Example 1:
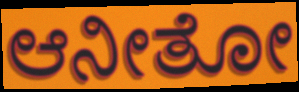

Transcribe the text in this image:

ಆನೀತೋ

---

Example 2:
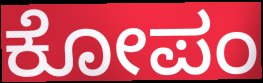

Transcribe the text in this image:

ಕೋಪಂ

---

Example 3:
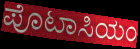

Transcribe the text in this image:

ಪೊಟಾಸಿಯಂ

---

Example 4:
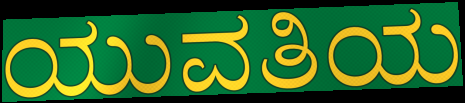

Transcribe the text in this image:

ಯುವತಿಯ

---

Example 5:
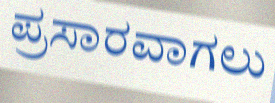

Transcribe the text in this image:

ಪ್ರಸಾರವಾಗಲು